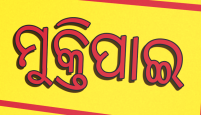
ମୁକ୍ତିପାଇ